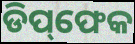
ଡିପ୍‌ଫେକ